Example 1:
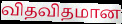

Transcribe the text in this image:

விதவிதமான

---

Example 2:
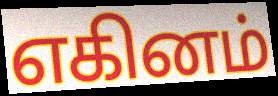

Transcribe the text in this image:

எகினம்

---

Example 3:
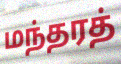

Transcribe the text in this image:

மந்தரத்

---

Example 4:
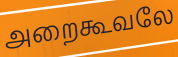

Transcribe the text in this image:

அறைகூவலே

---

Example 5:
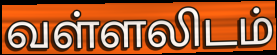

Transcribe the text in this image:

வள்ளலிடம்